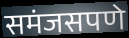
समंजसपणे